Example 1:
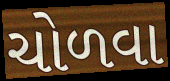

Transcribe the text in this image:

ચોળવા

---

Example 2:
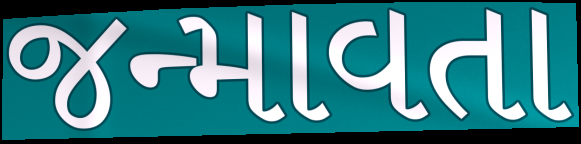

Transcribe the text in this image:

જન્માવતા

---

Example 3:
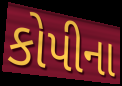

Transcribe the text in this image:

કોપીના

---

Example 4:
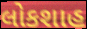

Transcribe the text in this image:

લોકશાહ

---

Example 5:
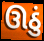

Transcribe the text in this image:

ઊઠું